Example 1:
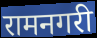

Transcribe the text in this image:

रामनगरी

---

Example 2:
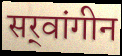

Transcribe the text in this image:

सर्वांगीन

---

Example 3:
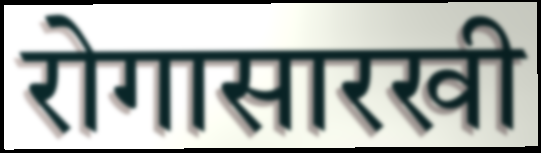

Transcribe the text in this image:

रोगासारखी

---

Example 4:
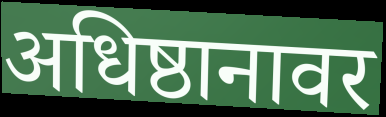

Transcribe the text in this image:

अधिष्ठानावर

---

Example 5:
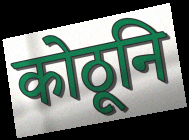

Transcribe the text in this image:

कोठूनि